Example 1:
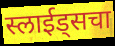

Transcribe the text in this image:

स्लाईड्सचा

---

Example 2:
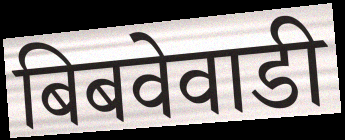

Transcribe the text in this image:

बिबवेवाडी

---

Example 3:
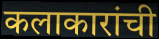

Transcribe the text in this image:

कलाकारांची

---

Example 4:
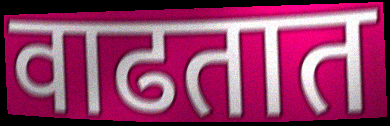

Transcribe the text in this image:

वाढतात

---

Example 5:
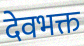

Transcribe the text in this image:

देवभक्त